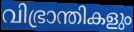
വിഭ്രാന്തികളും